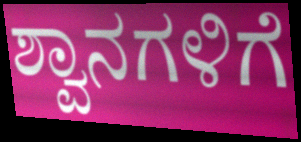
ಶ್ವಾನಗಳಿಗೆ